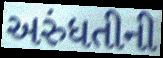
અરુંધતીની